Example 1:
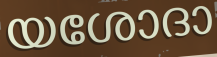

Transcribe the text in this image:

യശോദാ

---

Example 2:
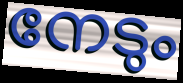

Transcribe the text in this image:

നേടും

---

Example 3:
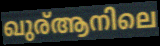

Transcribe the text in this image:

ഖുര്ആനിലെ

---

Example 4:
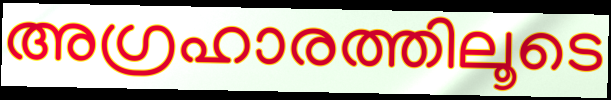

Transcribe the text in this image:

അഗ്രഹാരത്തിലൂടെ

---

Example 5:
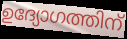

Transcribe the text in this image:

ഉദ്യോഗത്തിന്